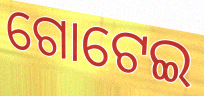
ଗୋଟେଇ